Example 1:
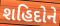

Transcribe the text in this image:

શહિદોને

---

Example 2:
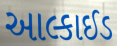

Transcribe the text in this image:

આલ્કાઈડ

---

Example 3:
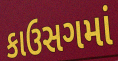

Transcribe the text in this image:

કાઉસગમાં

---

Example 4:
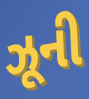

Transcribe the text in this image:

ઝૂની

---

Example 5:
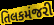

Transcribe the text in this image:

તિલકમંજરી